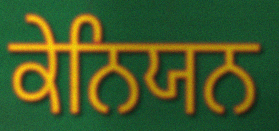
ਕੇਨਿਯਨ